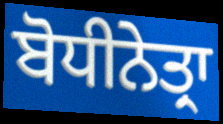
ਬੋਧੀਨੇਤ੍ਰਾ